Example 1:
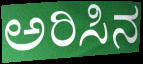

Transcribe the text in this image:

ಅರಿಸಿನ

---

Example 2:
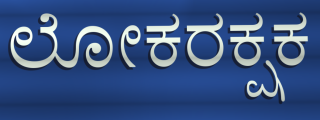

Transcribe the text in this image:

ಲೋಕರಕ್ಷಕ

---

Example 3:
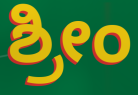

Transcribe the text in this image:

ಶ್ರೀಂ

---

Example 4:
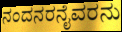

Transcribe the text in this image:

ನಂದನರನೈವರನು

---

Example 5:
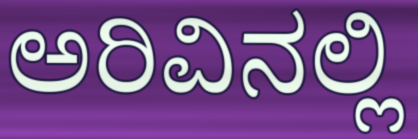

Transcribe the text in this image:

ಅರಿವಿನಲ್ಲಿ